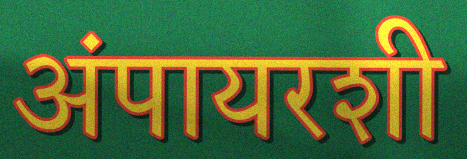
अंपायरशी